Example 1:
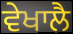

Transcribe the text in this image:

ਵੇਖਾਲੈ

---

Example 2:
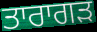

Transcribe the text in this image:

ਤਾਰਾਗੜ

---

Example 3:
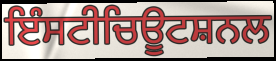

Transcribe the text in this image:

ਇੰਸਟੀਚਿਊਟਸ਼ਨਲ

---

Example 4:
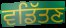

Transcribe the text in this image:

ਵਡਿੱਤਣ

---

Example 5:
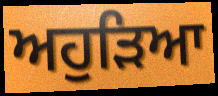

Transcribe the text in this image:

ਅਹੁੜਿਆ